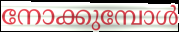
നോക്കുമ്പോൾ